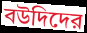
বউদিদের